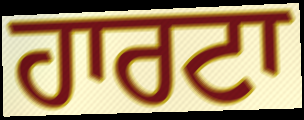
ਹਾਰਟਾ